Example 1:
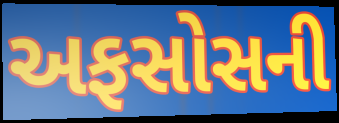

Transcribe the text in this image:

અફસોસની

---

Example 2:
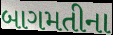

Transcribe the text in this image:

બાગમતીના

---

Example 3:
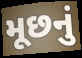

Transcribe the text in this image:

મૂછનું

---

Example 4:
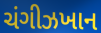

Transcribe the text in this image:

ચંગીઝખાન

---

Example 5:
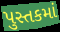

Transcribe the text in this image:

પુસ્તકમાં